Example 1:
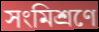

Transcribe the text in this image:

সংমিশ্রণে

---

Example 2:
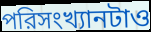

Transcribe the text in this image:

পরিসংখ্যানটাও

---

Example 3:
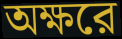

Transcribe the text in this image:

অক্ষরে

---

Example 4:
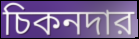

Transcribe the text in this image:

চিকনদার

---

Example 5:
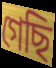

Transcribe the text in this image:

গেছি